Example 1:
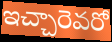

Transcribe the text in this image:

ఇచ్చారెవరో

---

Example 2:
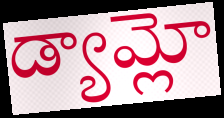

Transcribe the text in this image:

డ్యామ్లో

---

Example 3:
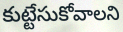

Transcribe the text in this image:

కుట్టేసుకోవాలని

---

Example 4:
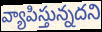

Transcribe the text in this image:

వ్యాపిస్తున్నదని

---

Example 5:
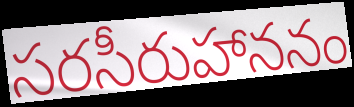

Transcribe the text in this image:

సరసీరుహాననం